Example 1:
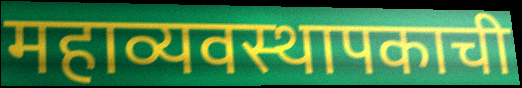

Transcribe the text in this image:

महाव्यवस्थापकाची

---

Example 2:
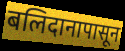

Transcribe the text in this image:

बलिदानापासून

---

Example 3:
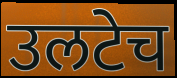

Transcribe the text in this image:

उलटेच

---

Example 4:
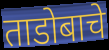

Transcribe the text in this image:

ताडोबाचे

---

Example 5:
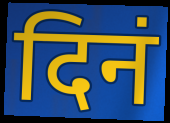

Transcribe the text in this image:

दिनं